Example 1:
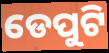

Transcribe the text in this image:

ଡେପୁଟି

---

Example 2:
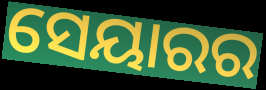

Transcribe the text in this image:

ସେୟାରର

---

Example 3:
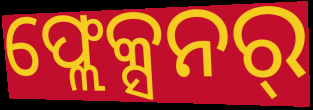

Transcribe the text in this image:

ଫ୍ଲେକ୍ସନର୍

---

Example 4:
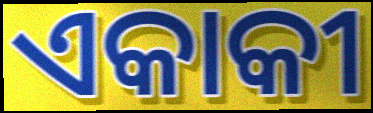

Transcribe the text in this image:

ଏକାକୀ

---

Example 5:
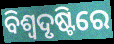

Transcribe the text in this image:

ବିଶ୍ଵଦୃଷ୍ଟିରେ